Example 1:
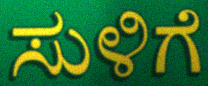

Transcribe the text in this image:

ಸುಳಿಗೆ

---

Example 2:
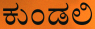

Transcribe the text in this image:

ಕುಂಡಲಿ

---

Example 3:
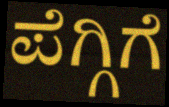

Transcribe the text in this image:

ಪೆಗ್ಗಿಗೆ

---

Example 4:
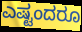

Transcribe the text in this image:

ಎಷ್ಟಂದರೂ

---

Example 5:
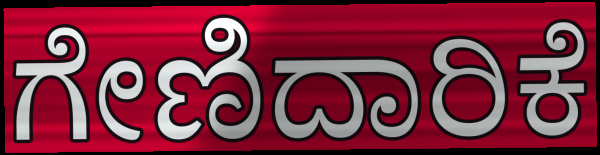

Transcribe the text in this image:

ಗೇಣಿದಾರಿಕೆ